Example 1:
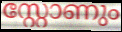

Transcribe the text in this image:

സ്റ്റോണും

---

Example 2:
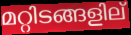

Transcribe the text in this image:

മറ്റിടങ്ങളില്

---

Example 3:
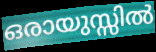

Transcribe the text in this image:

ഒരായുസ്സിൽ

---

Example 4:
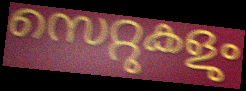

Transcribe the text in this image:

സെറ്റുകളും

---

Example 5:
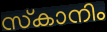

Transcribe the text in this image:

സ്‌കാനിം